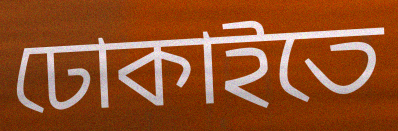
ঢোকাইতে